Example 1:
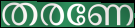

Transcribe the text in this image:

തരണേ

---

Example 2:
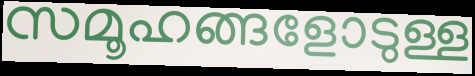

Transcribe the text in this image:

സമൂഹങ്ങളോടുള്ള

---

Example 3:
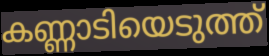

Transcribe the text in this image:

കണ്ണാടിയെടുത്ത്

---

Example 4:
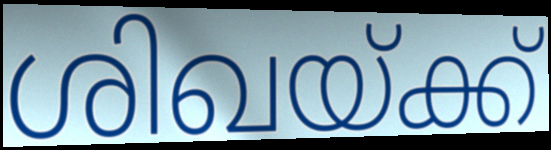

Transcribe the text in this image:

ശിഖയ്ക്ക്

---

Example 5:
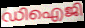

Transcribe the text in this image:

ഡിഐജി